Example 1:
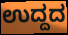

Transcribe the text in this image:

ಉದ್ದದ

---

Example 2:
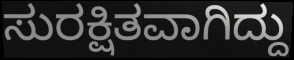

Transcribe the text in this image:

ಸುರಕ್ಷಿತವಾಗಿದ್ದು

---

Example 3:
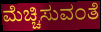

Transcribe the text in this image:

ಮೆಚ್ಚಿಸುವಂತೆ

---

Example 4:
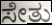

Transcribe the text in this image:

ಸೇತು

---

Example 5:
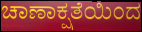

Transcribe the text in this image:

ಚಾಣಾಕ್ಷತೆಯಿಂದ